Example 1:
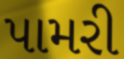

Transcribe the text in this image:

પામરી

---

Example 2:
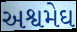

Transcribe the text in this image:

અશ્વમેઘ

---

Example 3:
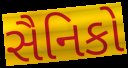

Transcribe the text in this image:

સૈનિકો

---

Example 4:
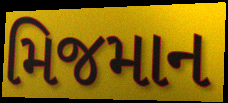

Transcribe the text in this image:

મિજમાન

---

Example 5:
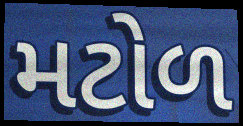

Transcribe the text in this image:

મટોળ